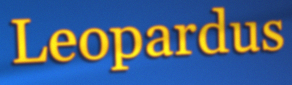
Leopardus